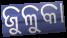
ଜୁଳୁକା